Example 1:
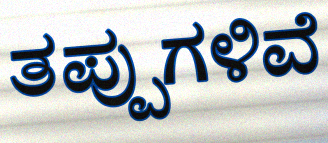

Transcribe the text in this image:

ತಪ್ಪುಗಳಿವೆ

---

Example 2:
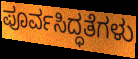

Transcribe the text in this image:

ಪೂರ್ವಸಿದ್ಧತೆಗಳು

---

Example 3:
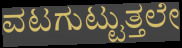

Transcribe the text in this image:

ವಟಗುಟ್ಟುತ್ತಲೇ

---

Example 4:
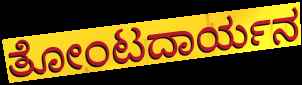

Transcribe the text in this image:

ತೋಂಟದಾರ್ಯನ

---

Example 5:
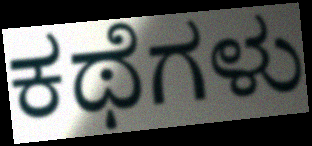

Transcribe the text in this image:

ಕಥೆಗಳು